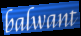
balwant